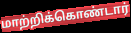
மாற்றிக்கொண்டார்